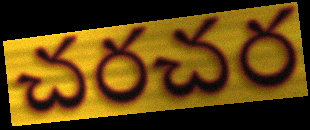
చరచర